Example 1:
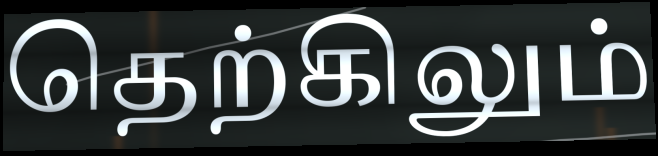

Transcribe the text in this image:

தெற்கிலும்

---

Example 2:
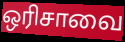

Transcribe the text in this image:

ஒரிசாவை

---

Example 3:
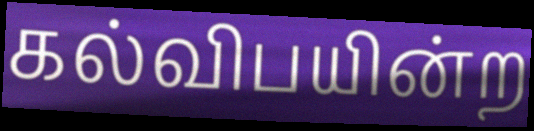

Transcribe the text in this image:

கல்விபயின்ற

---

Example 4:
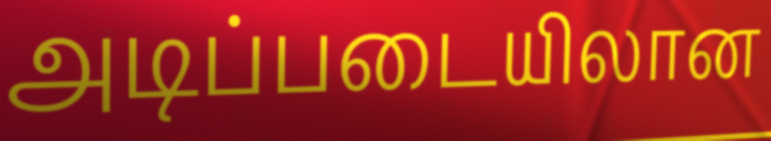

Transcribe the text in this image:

அடிப்படையிலான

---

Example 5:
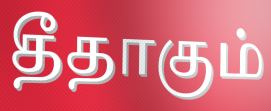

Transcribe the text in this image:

தீதாகும்